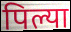
पिल्या